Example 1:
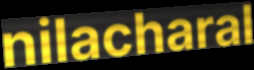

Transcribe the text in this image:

nilacharal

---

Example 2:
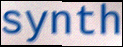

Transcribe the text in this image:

synth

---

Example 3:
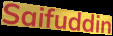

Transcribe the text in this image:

Saifuddin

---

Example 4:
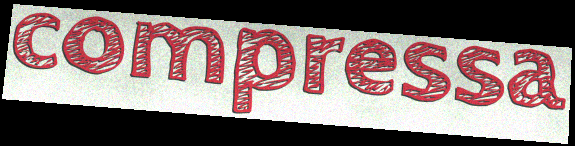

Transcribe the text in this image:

compressa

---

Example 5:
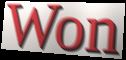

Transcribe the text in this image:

Won